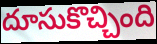
దూసుకొచ్చింది